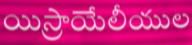
యిస్రాయేలీయుల